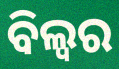
ବିଲ୍ୱର